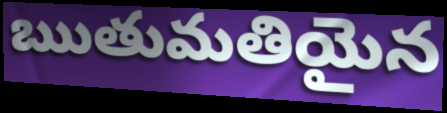
ఋతుమతియైన